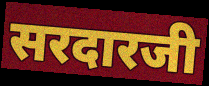
सरदारजी